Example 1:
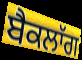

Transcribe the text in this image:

ਬੈਕਲਾੱਗ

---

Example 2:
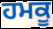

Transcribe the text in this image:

ਹਮਕੂ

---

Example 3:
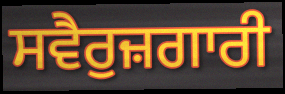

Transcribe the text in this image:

ਸਵੈਰੁਜ਼ਗਾਰੀ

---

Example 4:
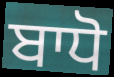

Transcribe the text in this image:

ਬਾਧੋ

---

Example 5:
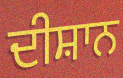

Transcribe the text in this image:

ਦੀਸ਼ਾਨ